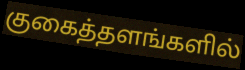
குகைத்தளங்களில்